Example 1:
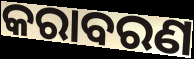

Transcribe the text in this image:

କରାବରଣ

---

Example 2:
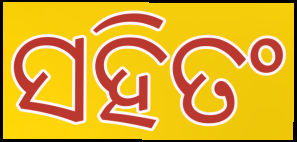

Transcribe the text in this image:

ସହିତଂ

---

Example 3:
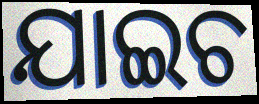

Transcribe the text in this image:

ଯାଇଚ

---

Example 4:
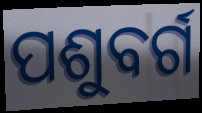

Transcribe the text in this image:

ପଶୁବର୍ଗ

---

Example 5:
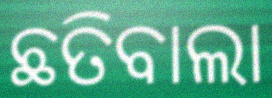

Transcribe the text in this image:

ଛତିବାଲା